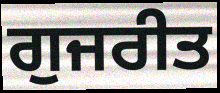
ਗੁਜਰੀਤ